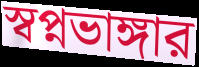
স্বপ্নভাঙ্গার